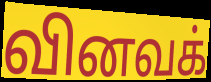
வினவக்